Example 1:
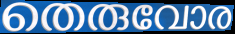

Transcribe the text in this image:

തെരുവോര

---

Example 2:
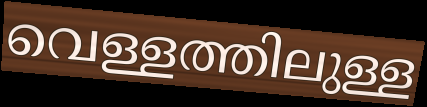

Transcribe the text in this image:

വെള്ളത്തിലുള്ള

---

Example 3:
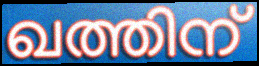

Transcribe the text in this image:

ഖത്തിന്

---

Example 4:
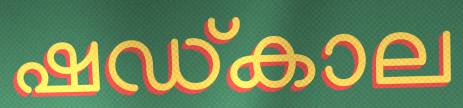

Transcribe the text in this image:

ഷഡ്കാല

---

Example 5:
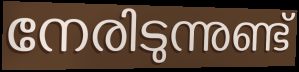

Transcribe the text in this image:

നേരിടുന്നുണ്ട്